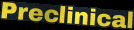
Preclinical